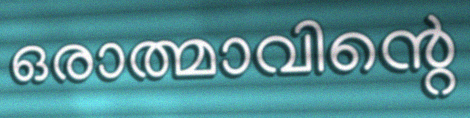
ഒരാത്മാവിന്റെ